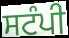
ਸਟੰਪੀ